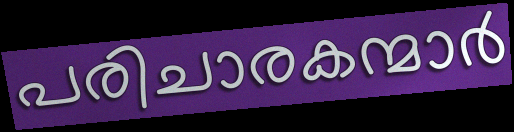
പരിചാരകന്മാർ